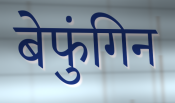
बेफुंगिन